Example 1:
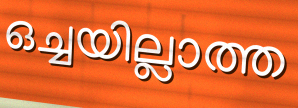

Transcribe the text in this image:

ഒച്ചയില്ലാത്ത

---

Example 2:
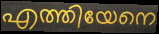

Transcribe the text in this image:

എത്തിയേനെ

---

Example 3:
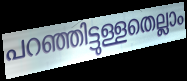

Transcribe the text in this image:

പറഞ്ഞിട്ടുള്ളതെല്ലാം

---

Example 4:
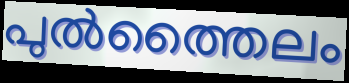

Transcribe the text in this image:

പുൽത്തൈലം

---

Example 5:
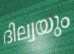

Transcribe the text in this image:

ദില്വയും